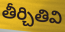
తీర్చితివి